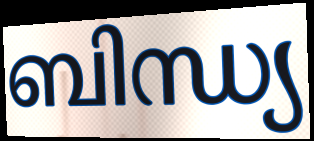
ബിന്ധ്യ